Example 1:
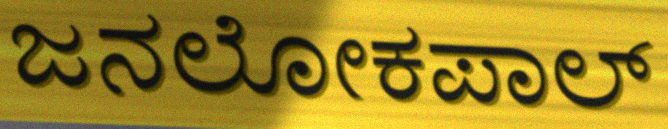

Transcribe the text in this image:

ಜನಲೋಕಪಾಲ್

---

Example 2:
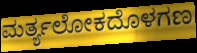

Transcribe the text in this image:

ಮರ್ತ್ಯಲೋಕದೊಳಗಣ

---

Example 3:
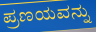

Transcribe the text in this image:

ಪ್ರಣಯವನ್ನು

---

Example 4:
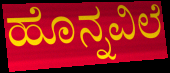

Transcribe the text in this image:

ಹೊನ್ನವಿಲೆ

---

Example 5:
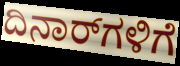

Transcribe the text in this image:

ದಿನಾರ್‌ಗಳಿಗೆ